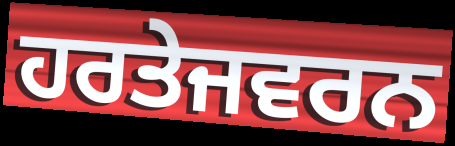
ਹਰਤੇਜਵਰਨ